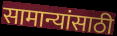
सामान्यांसाठी